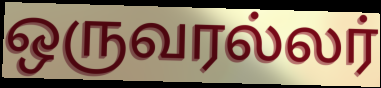
ஒருவரல்லர்